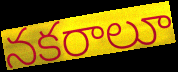
నకరాలూ